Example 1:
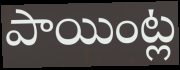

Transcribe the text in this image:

పాయింట్ల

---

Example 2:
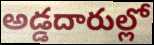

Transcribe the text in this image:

అడ్డదారుల్లో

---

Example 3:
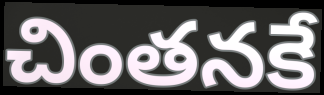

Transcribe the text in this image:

చింతనకే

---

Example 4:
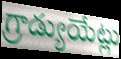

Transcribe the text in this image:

గ్రాడ్యుయేట్లు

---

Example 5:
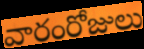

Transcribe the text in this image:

వారంరోజులు